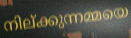
നില്ക്കുന്നമ്മയെ